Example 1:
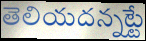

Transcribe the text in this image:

తెలియదన్నట్టే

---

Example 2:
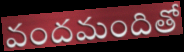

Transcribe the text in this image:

వందమందితో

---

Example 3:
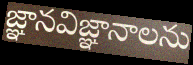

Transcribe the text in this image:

జ్ఞానవిజ్ఞానాలను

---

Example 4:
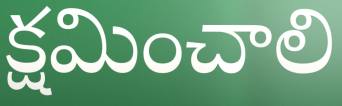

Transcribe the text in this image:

క్షమించాలి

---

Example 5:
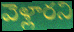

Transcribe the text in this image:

వెళ్లారని